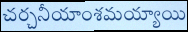
చర్చనీయాంశమయ్యాయి